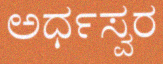
ಅರ್ಧಸ್ವರ